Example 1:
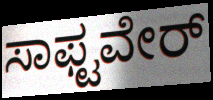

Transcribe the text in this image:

ಸಾಫ್ಟವೇರ್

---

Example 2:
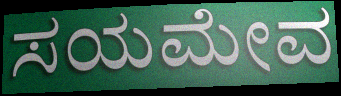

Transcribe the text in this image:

ಸಯಮೇವ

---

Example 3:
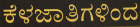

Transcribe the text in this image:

ಕೆಳಜಾತಿಗಳಿಂದ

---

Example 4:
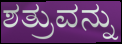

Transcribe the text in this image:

ಶತ್ರುವನ್ನು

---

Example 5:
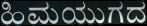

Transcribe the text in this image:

ಹಿಮಯುಗದ